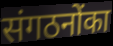
संगठनोंका